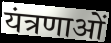
यंत्रणाओं